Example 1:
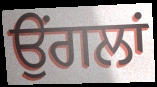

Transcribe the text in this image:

ਉੰਗਲਾਂ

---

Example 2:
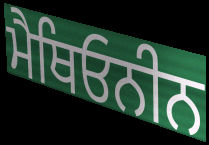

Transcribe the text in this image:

ਮੈਥਿਓਨੀਨ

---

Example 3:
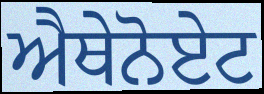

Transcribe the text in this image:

ਐਥੇਨੋਏਟ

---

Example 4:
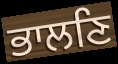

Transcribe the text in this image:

ਭਾਲਣਿ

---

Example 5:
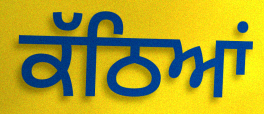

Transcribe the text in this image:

ਕੱਠਿਆਂ